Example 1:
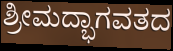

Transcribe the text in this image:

ಶ್ರೀಮದ್ಭಾಗವತದ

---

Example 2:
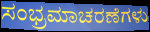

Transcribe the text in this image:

ಸಂಭ್ರಮಾಚರಣೆಗಳು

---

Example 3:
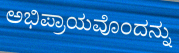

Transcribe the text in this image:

ಅಭಿಪ್ರಾಯವೊಂದನ್ನು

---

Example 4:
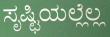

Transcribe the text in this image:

ಸೃಷ್ಟಿಯಲ್ಲೆಲ್ಲ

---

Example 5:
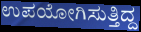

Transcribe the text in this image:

ಉಪಯೋಗಿಸುತ್ತಿದ್ದ